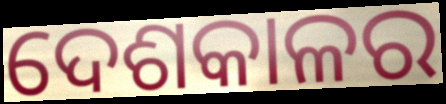
ଦେଶକାଳର